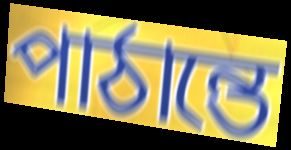
পাঠান্তে